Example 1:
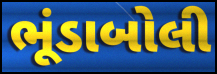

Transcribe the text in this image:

ભૂંડાબોલી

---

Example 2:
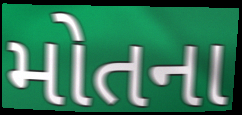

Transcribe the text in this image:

મોતના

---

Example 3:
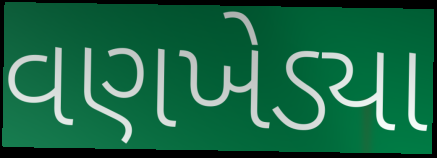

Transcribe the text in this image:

વણખેડ્યા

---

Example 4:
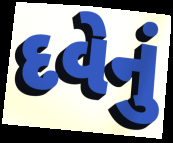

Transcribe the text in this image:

દવેનું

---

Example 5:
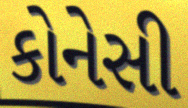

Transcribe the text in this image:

કોનેસી